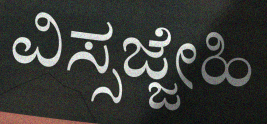
ವಿಸ್ಸಜ್ಜೇಹಿ